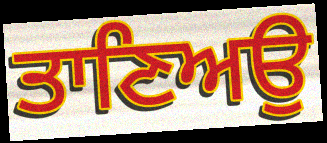
ਤਾਣਿਅਉ